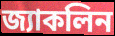
জ্যাকলিন